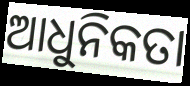
ଆଧୁନିକତା